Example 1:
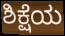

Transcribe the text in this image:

ಶಿಕ್ಷೆಯ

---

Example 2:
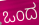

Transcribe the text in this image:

ಒಂದ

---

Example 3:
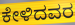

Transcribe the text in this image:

ಕೇಳಿದವರ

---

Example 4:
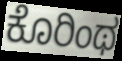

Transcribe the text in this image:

ಕೊರಿಂಥ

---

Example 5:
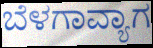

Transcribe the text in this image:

ಬೆಳಗಾವ್ಯಾಗ